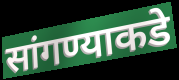
सांगण्याकडे